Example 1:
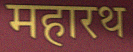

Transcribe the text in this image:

महारथ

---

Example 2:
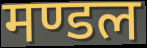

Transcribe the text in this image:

मण्डल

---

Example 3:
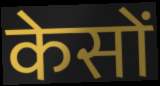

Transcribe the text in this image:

केसों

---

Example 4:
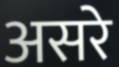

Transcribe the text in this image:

असरे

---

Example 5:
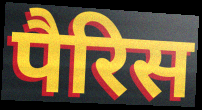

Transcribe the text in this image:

पैरिस